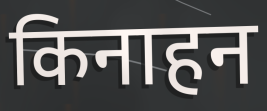
किनाहन